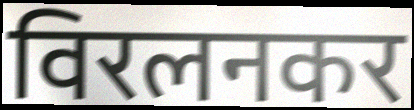
विरलनकर